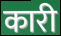
कारी